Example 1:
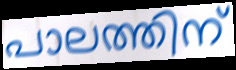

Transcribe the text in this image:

പാലത്തിന്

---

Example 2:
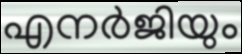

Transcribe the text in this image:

എനർജിയും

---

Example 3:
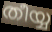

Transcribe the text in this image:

തീയ്യ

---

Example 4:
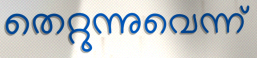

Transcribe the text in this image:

തെറ്റുന്നുവെന്ന്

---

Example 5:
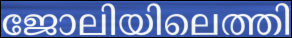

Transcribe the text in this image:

ജോലിയിലെത്തി